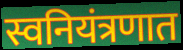
स्वनियंत्रणात